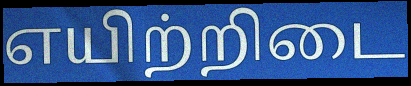
எயிற்றிடை